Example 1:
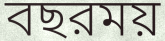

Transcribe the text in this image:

বছরময়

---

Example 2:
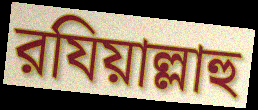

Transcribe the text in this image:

রযিয়াল্লাহু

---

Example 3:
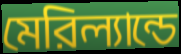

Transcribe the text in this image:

মেরিল্যান্ডে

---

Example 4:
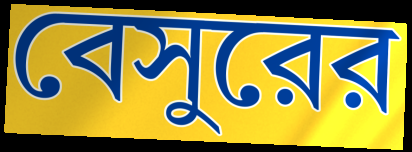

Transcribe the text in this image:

বেসুরের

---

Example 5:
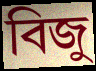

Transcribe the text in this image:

বিজু